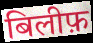
बिलीफ़